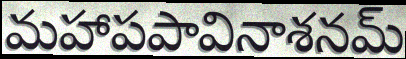
మహాపపావినాశనమ్